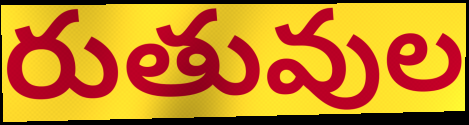
రుతువుల